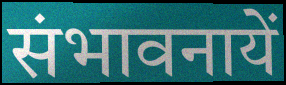
संभावनायें